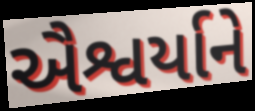
ઐશ્વર્યાને